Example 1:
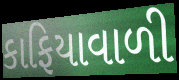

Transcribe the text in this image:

કાફિયાવાળી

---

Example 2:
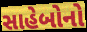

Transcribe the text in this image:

સાહેબોનો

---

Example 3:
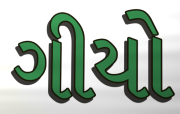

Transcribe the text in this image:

ગીયો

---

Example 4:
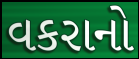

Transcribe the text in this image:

વકરાનો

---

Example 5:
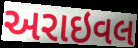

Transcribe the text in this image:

અરાઇવલ